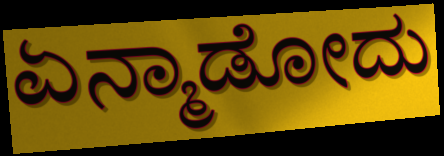
ಏನ್ಮಾಡೋದು